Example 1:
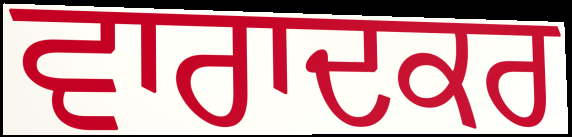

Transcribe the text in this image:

ਵਾਰਾਦਕਰ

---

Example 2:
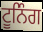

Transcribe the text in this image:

ਟੂਨਿੰਗ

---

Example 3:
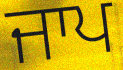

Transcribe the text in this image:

ਜਾਪ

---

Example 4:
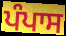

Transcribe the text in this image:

ਪੰਪਾਸ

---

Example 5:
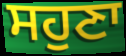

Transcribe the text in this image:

ਸਹੁਣਾ